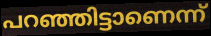
പറഞ്ഞിട്ടാണെന്ന്